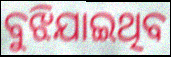
ବୁଝିଯାଇଥିବ